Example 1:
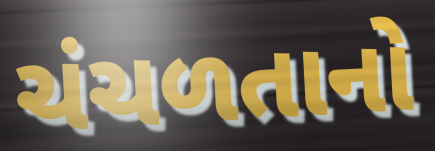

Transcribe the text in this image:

ચંચળતાનો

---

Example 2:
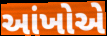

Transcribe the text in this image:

આંખોએ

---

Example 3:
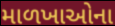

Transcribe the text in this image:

માળખાઓના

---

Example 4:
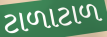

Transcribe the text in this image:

ટાળાટાળ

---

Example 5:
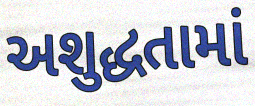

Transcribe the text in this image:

અશુદ્ધતામાં